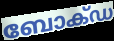
ബോക്ഡ